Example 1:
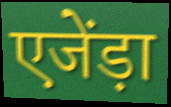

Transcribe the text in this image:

एजेंड़ा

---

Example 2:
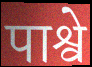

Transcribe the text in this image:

पाश्वे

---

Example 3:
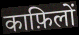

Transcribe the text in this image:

काफ़िलों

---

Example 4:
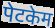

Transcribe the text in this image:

पेटकेम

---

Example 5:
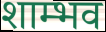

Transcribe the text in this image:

शाम्भव